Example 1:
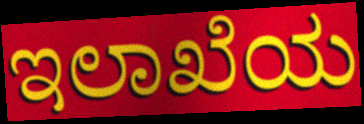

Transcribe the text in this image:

ಇಲಾಖೆಯ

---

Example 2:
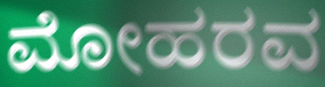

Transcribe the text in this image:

ಮೋಹರವ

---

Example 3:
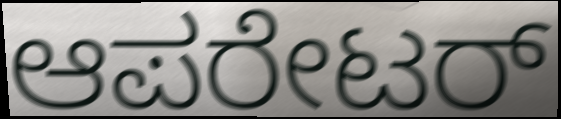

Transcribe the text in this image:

ಆಪರೇಟರ್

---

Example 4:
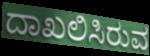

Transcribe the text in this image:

ದಾಖಲಿಸಿರುವ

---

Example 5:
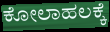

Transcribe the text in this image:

ಕೋಲಾಹಲಕ್ಕೆ